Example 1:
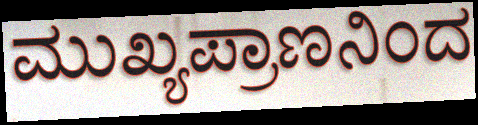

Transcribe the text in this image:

ಮುಖ್ಯಪ್ರಾಣನಿಂದ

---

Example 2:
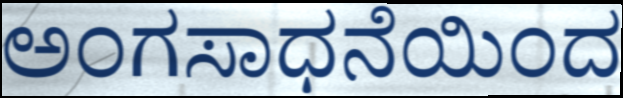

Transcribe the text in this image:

ಅಂಗಸಾಧನೆಯಿಂದ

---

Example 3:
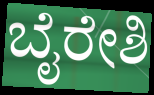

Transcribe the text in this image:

ಬೈರೇಶಿ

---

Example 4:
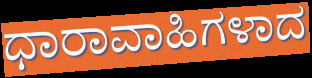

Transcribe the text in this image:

ಧಾರಾವಾಹಿಗಳಾದ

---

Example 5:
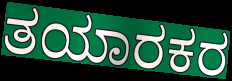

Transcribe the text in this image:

ತಯಾರಕರ